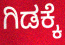
ಗಿಡಕ್ಕೆ